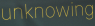
unknowing